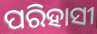
ପରିହାସୀ